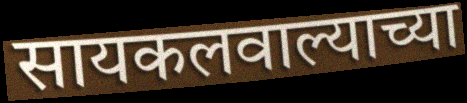
सायकलवाल्याच्या